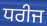
ਧਰੀਜ